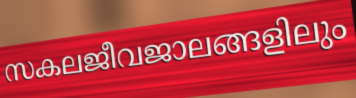
സകലജീവജാലങ്ങളിലും